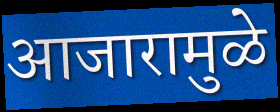
आजारामुळे